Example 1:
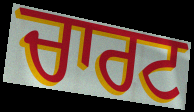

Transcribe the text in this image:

ਚਾਰਟ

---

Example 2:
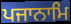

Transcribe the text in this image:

ਪਜਾਨਾਮਿ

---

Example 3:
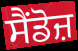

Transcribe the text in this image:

ਸੈਂਡੋਜ਼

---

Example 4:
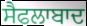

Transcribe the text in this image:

ਸੈਫਲਾਬਾਦ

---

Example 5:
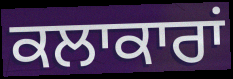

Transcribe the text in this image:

ਕਲਾਕਾਰਾਂ